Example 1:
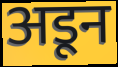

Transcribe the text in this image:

अडून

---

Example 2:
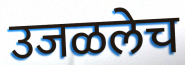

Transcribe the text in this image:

उजळलेच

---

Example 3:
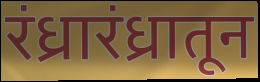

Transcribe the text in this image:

रंध्रारंध्रातून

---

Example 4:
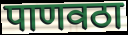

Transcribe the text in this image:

पाणवठा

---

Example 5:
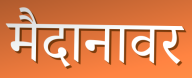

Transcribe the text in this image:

मैदानावर